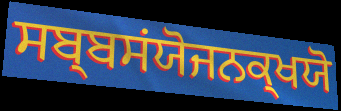
ਸਬ੍ਬਸਂਯੋਜਨਕ੍ਖਯੋ